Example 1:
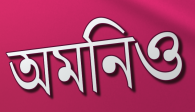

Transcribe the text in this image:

অমনিও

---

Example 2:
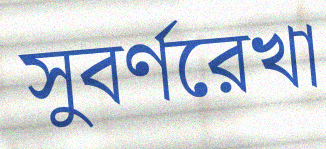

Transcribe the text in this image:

সুবর্ণরেখা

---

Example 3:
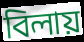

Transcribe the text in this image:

বিলায়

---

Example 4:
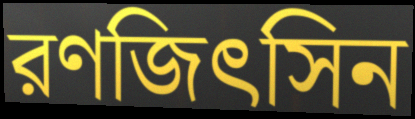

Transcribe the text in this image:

রণজিৎসিন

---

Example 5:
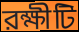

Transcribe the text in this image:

রক্ষীটি